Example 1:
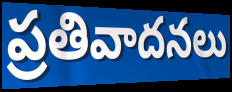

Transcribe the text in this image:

ప్రతివాదనలు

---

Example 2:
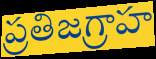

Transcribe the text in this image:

ప్రతిజగ్రాహ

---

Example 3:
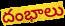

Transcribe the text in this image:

దంభాలు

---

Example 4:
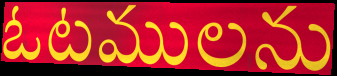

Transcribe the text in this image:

ఓటములను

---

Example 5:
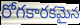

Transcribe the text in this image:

రోగకారకమైన